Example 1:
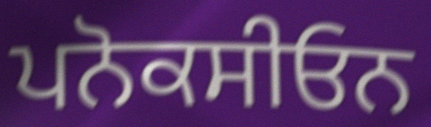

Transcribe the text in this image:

ਪਨੋਕਸੀਓਨ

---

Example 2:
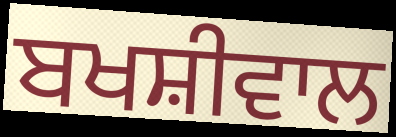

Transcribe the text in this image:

ਬਖਸ਼ੀਵਾਲ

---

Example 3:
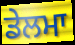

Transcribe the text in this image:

ਡੇਲਮਾ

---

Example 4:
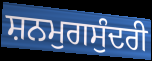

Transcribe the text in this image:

ਸ਼ਨਮੁਗਸੁੰਦਰੀ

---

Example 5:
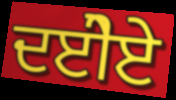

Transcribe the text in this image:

ਦਈੇਏ